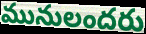
మునులందరు